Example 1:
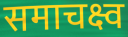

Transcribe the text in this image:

समाचक्ष्व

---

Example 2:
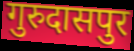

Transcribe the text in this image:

गुरुदासपुर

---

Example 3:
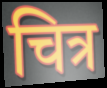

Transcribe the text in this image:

चित्र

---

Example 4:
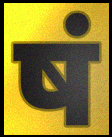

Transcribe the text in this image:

षं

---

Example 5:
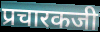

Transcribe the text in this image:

प्रचारकजी